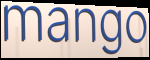
mango